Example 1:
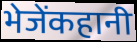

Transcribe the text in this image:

भेजेंकहानी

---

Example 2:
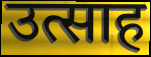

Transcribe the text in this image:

उत्साह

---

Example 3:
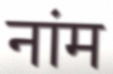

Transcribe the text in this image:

नांम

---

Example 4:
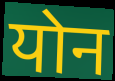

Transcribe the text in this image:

योन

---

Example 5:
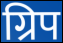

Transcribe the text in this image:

ग्रिप